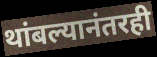
थांबल्यानंतरही